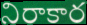
నిరాకార